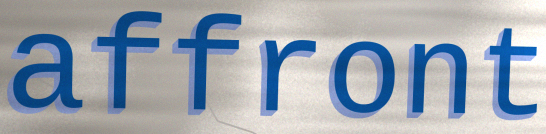
affront